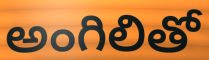
అంగిలితో